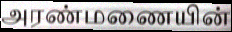
அரண்மணையின்